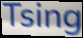
Tsing